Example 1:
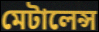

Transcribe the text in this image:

মেটালেন্স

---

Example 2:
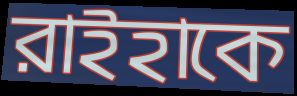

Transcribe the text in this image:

রাইহাকে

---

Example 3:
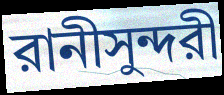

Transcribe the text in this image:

রানীসুন্দরী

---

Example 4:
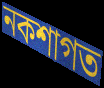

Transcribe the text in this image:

নকশাগত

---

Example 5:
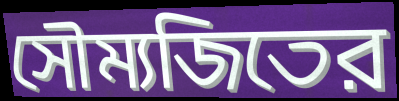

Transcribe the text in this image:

সৌম্যজিতের